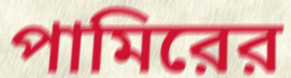
পামিরের